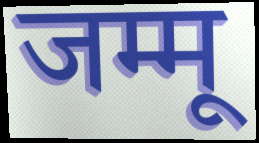
जम्मू